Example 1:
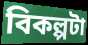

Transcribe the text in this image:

বিকল্পটা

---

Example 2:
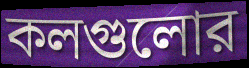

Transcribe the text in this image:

কলগুলোর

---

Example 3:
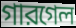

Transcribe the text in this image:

গারগেল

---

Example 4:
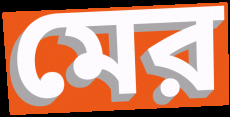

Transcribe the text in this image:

মের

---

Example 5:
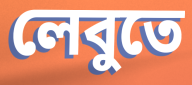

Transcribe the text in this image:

লেবুতে